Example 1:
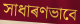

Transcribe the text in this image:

সাধাৰণভাবে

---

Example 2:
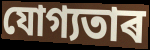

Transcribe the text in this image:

যোগ্যতাৰ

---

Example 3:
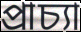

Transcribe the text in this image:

প্ৰাচ্যা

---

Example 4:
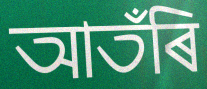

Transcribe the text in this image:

আতঁৰি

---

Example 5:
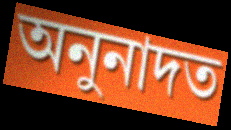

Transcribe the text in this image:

অনুনাদত